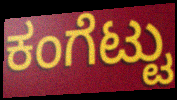
ಕಂಗೆಟ್ಟು